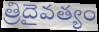
త్రిదైవత్యం